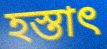
হস্তাৎ